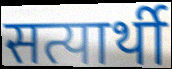
सत्यार्थी